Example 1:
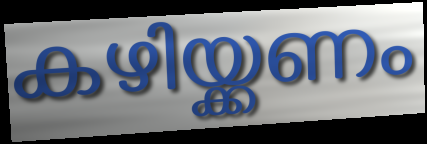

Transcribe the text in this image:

കഴിയ്ക്കണം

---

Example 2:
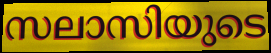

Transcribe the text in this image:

സലാസിയുടെ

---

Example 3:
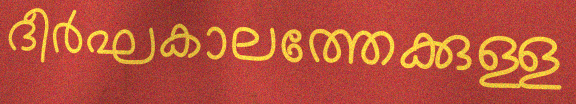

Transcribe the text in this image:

ദീർഘകാലത്തേക്കുള്ള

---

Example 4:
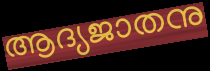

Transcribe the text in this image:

ആദ്യജാതനു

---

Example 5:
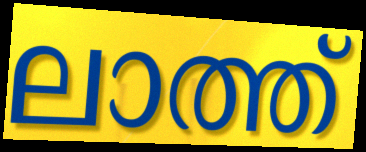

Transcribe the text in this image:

ലാത്ത്